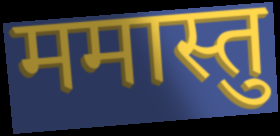
ममास्तु